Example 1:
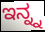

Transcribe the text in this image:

ಇನ್ನ್ನ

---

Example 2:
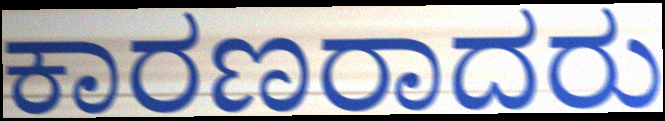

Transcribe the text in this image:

ಕಾರಣರಾದರು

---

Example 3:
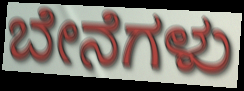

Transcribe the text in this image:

ಬೇನೆಗಳು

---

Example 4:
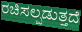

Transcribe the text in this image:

ರಚಿಸಲ್ಪಡುತ್ತದೆ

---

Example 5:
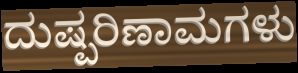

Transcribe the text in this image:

ದುಷ್ಪರಿಣಾಮಗಳು